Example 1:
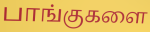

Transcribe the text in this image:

பாங்குகளை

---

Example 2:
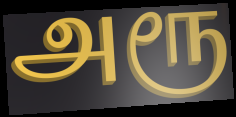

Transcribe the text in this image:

அரூ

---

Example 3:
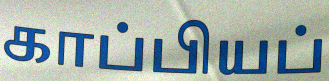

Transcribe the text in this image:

காப்பியப்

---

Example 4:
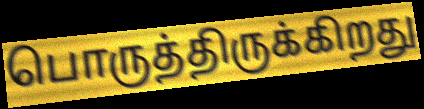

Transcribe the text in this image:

பொருத்திருக்கிறது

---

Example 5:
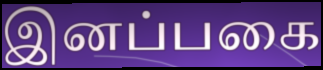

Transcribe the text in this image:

இனப்பகை